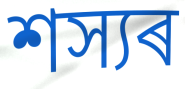
শস্যৰ